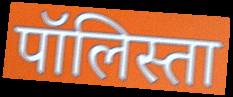
पॉलिस्ता